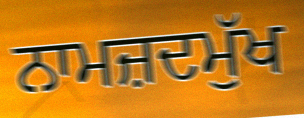
ਨਾਮਜ਼ਦਮੁੱਖ